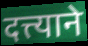
दत्त्याने